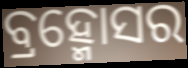
ବ୍ରହ୍ମୋସର